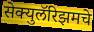
सेक्युलॅरिझमचे